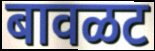
बावळट